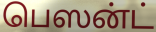
பெஸன்ட்